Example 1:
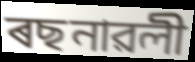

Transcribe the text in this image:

ৰছনাৱলী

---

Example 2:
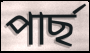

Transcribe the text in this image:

পাৰ্ছ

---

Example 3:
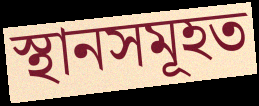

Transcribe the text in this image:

স্থানসমূহত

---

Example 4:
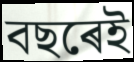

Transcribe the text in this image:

বছৰেই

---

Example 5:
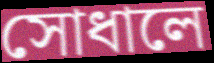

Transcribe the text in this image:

সোধালে